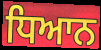
ਧਿਆਨ